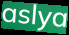
aslya